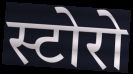
स्टोरो